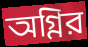
অগ্নির